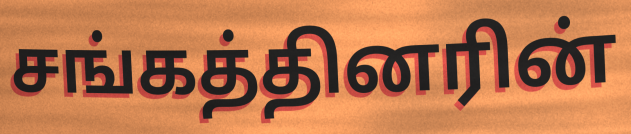
சங்கத்தினரின்